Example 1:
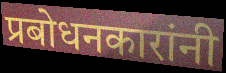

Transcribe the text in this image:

प्रबोधनकारांनी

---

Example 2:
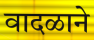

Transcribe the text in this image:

वादळाने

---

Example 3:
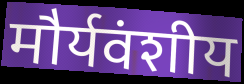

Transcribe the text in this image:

मौर्यवंशीय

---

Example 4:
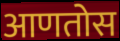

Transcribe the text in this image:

आणतोस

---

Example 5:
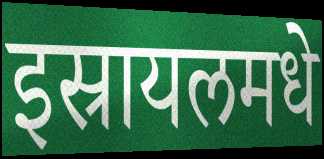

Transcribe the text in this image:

इस्रायलमधे